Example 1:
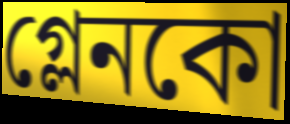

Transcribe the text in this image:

গ্লেনকো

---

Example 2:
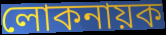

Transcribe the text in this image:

লোকনায়ক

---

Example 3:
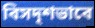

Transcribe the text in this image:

বিসদৃশভাবে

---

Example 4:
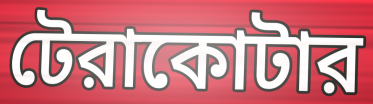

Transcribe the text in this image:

টেরাকোটার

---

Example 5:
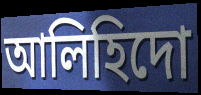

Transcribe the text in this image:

আলিহিদো